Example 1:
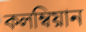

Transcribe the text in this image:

কলম্বিয়ান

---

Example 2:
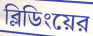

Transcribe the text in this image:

ব্লিডিংয়ের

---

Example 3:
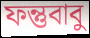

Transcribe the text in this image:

ফন্তুবাবু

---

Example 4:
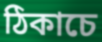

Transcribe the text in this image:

ঠিকাচে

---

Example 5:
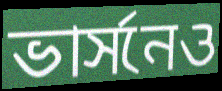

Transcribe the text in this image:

ভার্সনেও